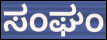
ಸಂಘಂ